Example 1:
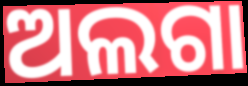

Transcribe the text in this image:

ଅଲଗା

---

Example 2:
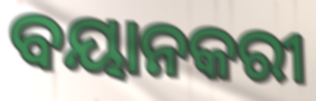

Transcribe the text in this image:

ବୟାନକରୀ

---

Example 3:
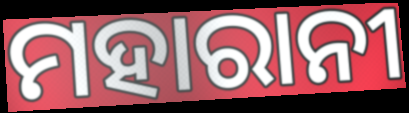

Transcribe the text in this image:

ମହାରାନୀ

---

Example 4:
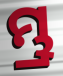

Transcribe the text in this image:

ମ୍ଭ୍ର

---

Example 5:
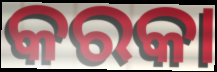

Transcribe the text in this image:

କରକା